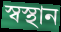
স্বস্থান